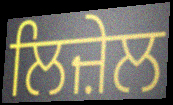
ਲਿਜ਼ੇਲ